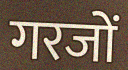
गरजों